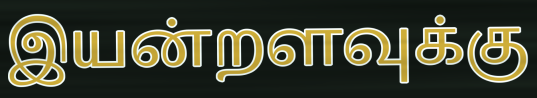
இயன்றளவுக்கு